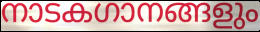
നാടകഗാനങ്ങളും